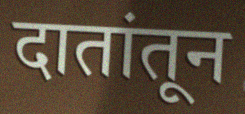
दातांतून